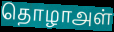
தொழாஅள்